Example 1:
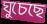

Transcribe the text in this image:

ঘুচেছে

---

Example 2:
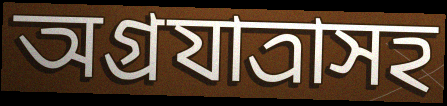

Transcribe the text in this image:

অগ্রযাত্রাসহ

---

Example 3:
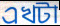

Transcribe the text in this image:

এখটা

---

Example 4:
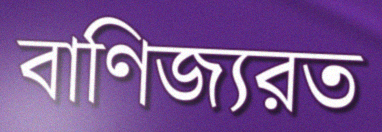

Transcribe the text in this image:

বাণিজ্যরত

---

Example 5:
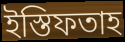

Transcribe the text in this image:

ইস্তিফতাহ